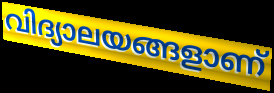
വിദ്യാലയങ്ങളാണ്